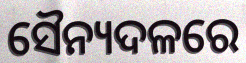
ସୈନ୍ୟଦଳରେ